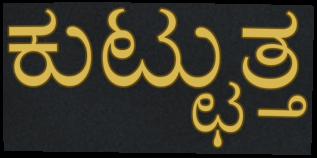
ಕುಟ್ಟುತ್ತ